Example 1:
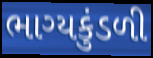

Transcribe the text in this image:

ભાગ્યકુંડળી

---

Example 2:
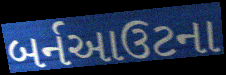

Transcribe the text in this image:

બર્નઆઉટના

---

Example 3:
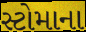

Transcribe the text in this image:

સ્ટોમાના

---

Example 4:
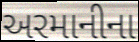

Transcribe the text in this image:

અરમાનીના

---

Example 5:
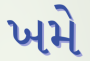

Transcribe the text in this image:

ખમે